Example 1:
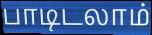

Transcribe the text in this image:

பாடிடலாம்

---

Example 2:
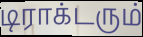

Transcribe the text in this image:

டிராக்டரும்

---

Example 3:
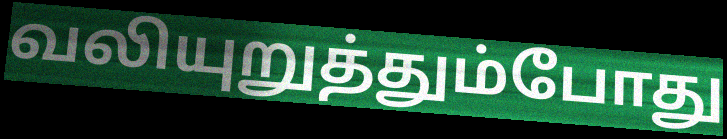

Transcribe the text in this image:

வலியுறுத்தும்போது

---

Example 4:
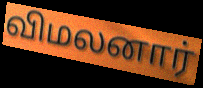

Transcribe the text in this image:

விமலனார்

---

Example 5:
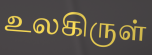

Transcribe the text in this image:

உலகிருள்